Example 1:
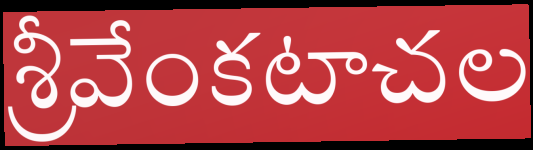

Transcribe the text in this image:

శ్రీవేంకటాచల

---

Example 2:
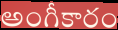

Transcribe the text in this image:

అంగీకారం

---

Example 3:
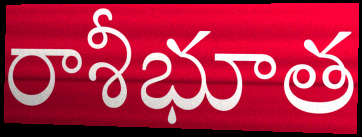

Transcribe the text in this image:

రాశీభూత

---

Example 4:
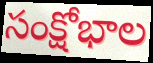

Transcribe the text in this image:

సంక్షోభాల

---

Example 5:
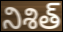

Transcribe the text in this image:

నిశిత్